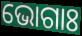
ଭୋଗାଃ